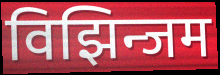
विझिन्जम